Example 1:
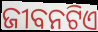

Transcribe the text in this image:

ଜୀବନଟିଏ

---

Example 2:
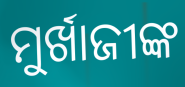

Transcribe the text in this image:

ମୁର୍ଖାଜୀଙ୍କ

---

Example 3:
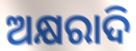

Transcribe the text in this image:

ଅକ୍ଷରାଦି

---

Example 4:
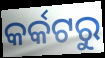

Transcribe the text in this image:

କର୍କଟରୁ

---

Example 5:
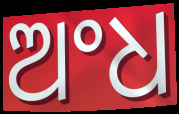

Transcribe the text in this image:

ଅଂଧ